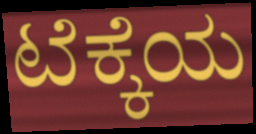
ಟೆಕ್ಕೆಯ